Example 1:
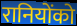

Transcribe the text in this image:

रानियोंको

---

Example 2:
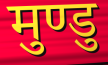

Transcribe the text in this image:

मुण्डु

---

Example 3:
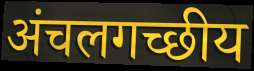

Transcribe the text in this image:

अंचलगच्छीय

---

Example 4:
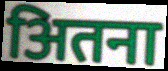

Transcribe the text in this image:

अितना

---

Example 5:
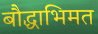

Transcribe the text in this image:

बौद्धाभिमत